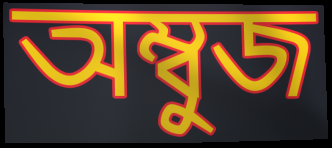
অম্বুজ